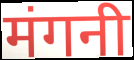
मंगनी